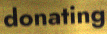
donating